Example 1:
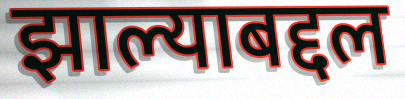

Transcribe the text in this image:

झाल्याबद्दल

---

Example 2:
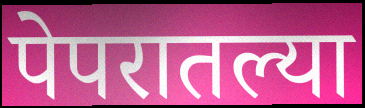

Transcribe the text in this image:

पेपरातल्या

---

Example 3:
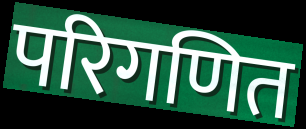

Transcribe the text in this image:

परिगणित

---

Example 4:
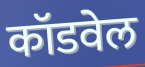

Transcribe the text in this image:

कॉडवेल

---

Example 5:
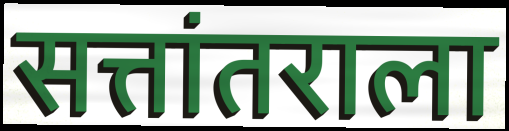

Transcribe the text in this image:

सत्तांतराला